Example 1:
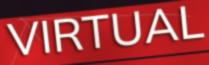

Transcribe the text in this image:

VIRTUAL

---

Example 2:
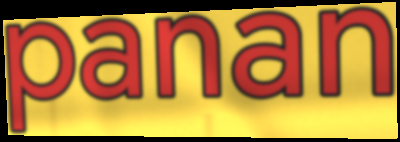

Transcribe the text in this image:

panan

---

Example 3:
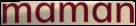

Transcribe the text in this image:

maman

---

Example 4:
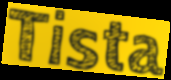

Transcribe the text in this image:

Tista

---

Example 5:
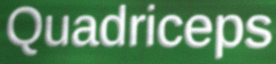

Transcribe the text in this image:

Quadriceps